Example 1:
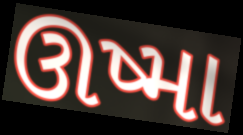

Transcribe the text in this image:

ઊષ્મા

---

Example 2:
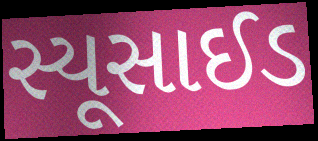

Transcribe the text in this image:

સ્યૂસાઈડ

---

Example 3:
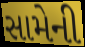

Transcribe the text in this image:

સામેની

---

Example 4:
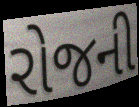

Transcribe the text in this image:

રોજની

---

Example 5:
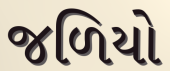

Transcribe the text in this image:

જળિયો